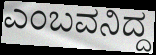
ಎಂಬವನಿದ್ದ